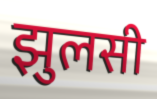
झुलसी